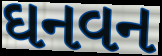
ઘનવન